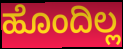
ಹೊಂದಿಲ್ಲ